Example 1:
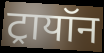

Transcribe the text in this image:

ट्रायॉन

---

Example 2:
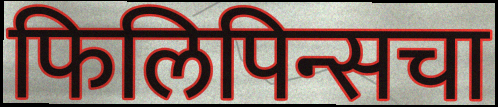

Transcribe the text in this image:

फिलिपिन्सचा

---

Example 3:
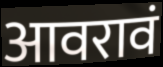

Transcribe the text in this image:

आवरावं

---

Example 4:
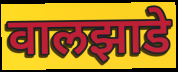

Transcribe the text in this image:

वालझाडे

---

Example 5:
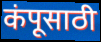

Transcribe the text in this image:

कंपूसाठी